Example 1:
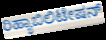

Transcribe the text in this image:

ರಿಹ್ಯಾಬಿಲಿಟೇಷನ್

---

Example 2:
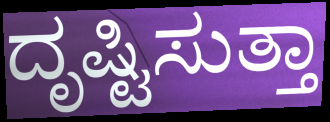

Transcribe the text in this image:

ದೃಷ್ಟಿಸುತ್ತಾ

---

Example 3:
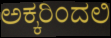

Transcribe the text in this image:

ಅಕ್ಕರಿಂದಲಿ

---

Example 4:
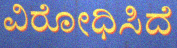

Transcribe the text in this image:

ವಿರೋಧಿಸಿದೆ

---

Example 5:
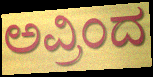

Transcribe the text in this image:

ಅವ್ರಿಂದ